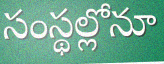
సంస్థల్లోనూ